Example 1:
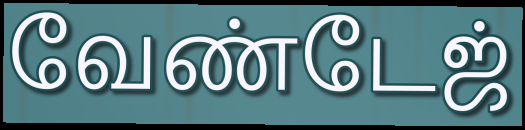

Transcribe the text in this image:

வேண்டேஜ்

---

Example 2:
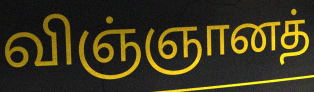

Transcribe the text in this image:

விஞ்ஞானத்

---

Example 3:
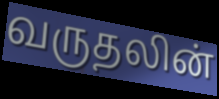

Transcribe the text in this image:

வருதலின்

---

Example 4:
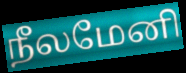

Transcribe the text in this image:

நீலமேனி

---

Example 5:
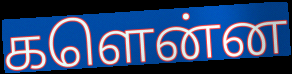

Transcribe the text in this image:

களென்ன